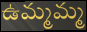
ఉమ్మమ్మ